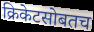
क्रिकेटसोबतच